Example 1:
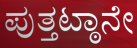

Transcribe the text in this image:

ಪುತ್ತಟ್ಠಾನೇ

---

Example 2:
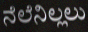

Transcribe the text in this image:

ನೆಲೆನಿಲ್ಲಲು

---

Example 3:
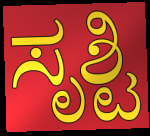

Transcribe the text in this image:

ಸೃಶ್ಟಿ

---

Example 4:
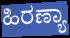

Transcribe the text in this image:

ಹಿರಣ್ಯಾ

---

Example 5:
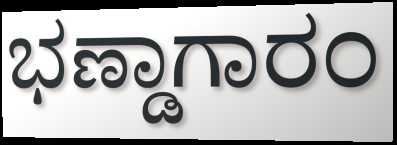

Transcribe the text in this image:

ಭಣ್ಡಾಗಾರಂ